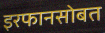
इरफानसोबत